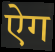
ऐग